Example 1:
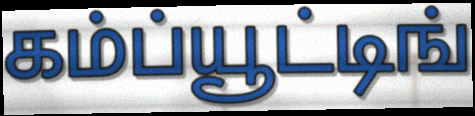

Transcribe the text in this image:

கம்ப்யூட்டிங்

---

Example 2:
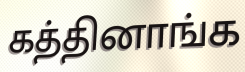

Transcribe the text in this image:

கத்தினாங்க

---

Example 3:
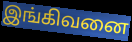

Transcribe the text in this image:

இங்கிவனை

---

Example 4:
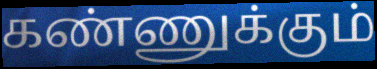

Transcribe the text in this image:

கண்ணுக்கும்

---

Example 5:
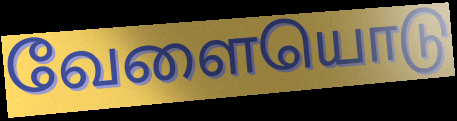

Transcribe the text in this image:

வேளையொடு